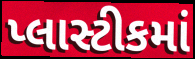
પ્લાસ્ટીકમાં